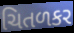
ચિતળકર